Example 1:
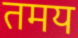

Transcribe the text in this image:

तमय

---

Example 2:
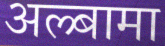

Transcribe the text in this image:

अल्बामा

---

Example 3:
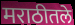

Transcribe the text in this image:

मराठीतले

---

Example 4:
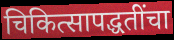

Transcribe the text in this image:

चिकित्सापद्धतींचा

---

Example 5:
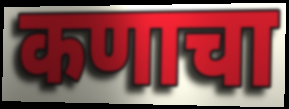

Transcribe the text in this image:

कणाचा